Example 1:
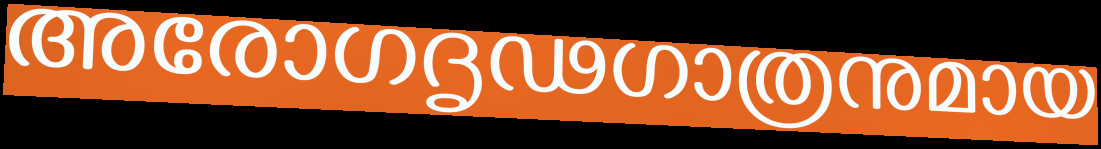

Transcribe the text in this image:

അരോഗദൃഢഗാത്രനുമായ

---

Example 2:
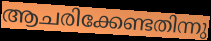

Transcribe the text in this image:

ആചരിക്കേണ്ടതിന്നു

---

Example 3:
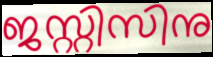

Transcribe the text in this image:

ജസ്റ്റിസിനു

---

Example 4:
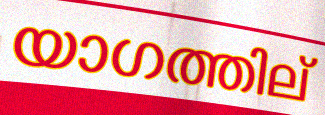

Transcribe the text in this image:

യാഗത്തില്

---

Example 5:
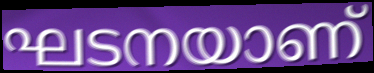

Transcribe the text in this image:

ഘടനയാണ്